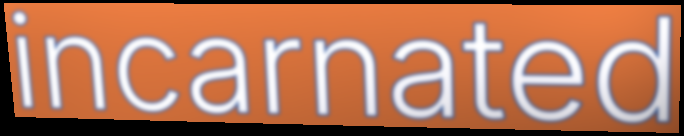
incarnated